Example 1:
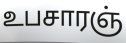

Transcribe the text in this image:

உபசாரஞ்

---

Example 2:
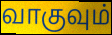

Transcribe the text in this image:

வாகுவும்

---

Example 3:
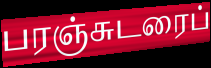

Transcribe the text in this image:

பரஞ்சுடரைப்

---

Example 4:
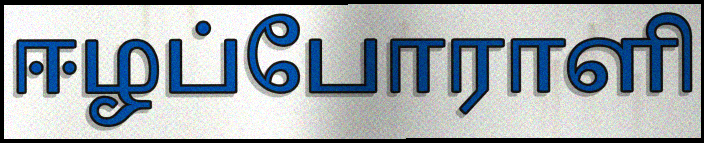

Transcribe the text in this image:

ஈழப்போராளி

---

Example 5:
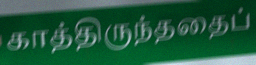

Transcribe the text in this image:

காத்திருந்ததைப்